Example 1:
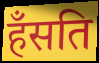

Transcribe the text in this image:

हँसति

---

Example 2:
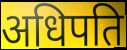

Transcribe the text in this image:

अधिपति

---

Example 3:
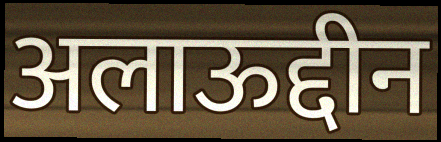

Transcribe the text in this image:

अलाऊद्दीन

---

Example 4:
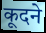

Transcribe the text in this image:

कूदने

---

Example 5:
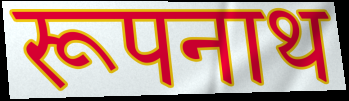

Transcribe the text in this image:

रूपनाथ